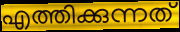
എത്തിക്കുന്നത്